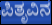
ಪಿತೃವಿನ